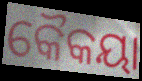
କୈକୟା